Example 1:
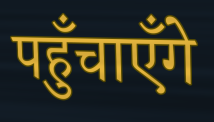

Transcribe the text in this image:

पहुँचाएँगे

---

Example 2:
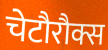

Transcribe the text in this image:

चेटौरौक्स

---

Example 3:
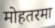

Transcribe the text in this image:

मोहतरमा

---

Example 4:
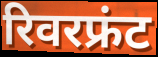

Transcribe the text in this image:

रिवरफ्रंट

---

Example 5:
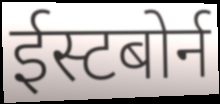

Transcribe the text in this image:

ईस्टबोर्न